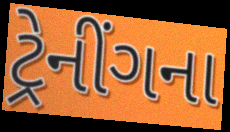
ટ્રેનીંગના